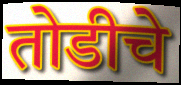
तोडीचे